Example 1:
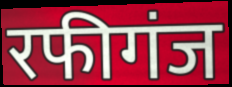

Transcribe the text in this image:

रफीगंज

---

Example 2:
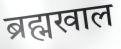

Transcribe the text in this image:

ब्रह्मखाल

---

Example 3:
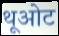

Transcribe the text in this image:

थूओट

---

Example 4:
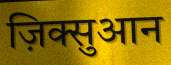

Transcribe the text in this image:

ज़िक्सुआन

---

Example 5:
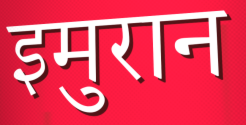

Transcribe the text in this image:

इमुरान